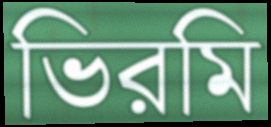
ভিরমি